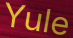
Yule